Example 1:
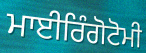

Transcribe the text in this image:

ਮਾਈਰਿੰਗੋਟੋਮੀ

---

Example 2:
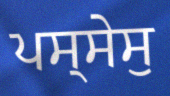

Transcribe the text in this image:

ਪਸ੍ਸੇਸੁ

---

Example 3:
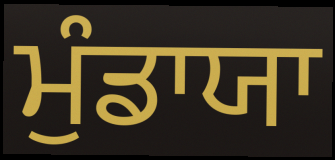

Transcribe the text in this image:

ਮੁੰਡਾਯਾ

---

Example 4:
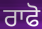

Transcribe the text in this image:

ਰਾਫੋ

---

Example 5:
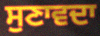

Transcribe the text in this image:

ਸੁਣਾਵਦਾ